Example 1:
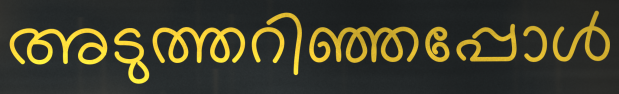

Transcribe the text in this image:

അടുത്തറിഞ്ഞപ്പോൾ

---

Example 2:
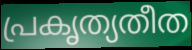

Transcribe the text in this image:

പ്രകൃത്യതീത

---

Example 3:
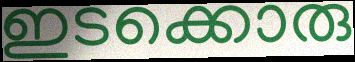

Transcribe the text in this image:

ഇടക്കൊരു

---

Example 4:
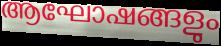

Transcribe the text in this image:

ആഘോഷങ്ങളും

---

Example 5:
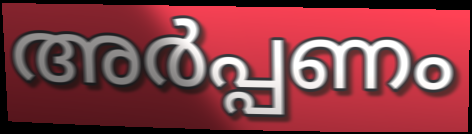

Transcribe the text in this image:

അർപ്പണം